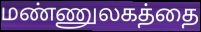
மண்ணுலகத்தை